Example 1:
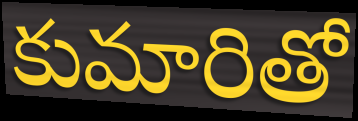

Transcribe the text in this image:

కుమారితో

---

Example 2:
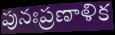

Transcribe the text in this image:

పునఃప్రణాళిక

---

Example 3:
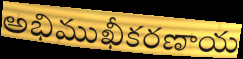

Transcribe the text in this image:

అభిముఖీకరణాయ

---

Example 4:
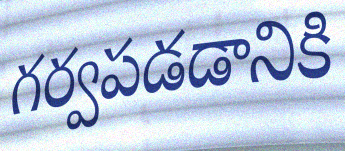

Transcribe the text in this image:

గర్వపడడానికి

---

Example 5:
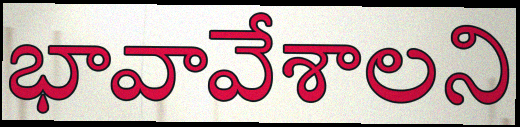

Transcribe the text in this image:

భావావేశాలని